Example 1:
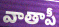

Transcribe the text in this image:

వాతాపీ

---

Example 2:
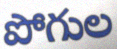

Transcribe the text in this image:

పోగుల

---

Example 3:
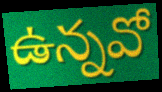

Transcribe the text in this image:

ఉన్నవో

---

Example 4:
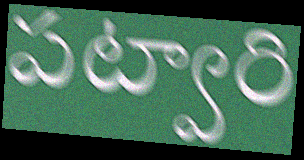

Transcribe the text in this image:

పట్వారి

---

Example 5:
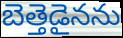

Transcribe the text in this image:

బెత్తెడైనను